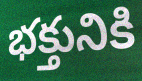
భక్తునికి